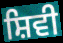
ਸ਼ਿਵੀ